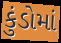
કુંડોમાં